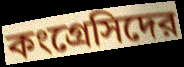
কংগ্রেসিদের